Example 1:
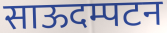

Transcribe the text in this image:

साऊदम्पटन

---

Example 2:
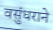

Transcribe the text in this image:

वसुंधराने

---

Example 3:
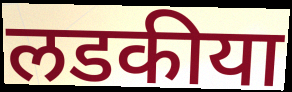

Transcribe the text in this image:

लडकीया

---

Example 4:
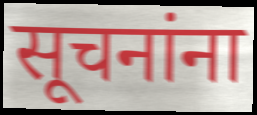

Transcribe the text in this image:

सूचनांना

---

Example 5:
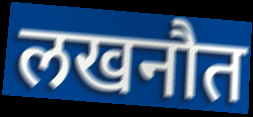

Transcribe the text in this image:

लखनौत